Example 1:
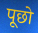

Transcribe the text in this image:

पूछो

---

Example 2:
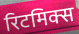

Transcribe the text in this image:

रिटमिक्स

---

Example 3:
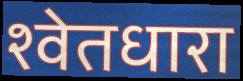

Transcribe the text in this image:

श्वेतधारा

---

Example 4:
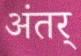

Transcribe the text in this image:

अंतर्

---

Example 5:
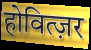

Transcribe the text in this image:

होवित्ज़र